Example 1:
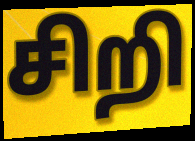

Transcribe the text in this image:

சிறி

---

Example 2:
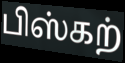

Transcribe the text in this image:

பிஸ்கற்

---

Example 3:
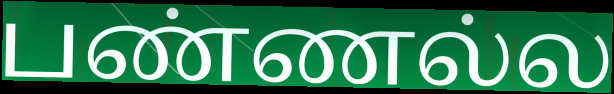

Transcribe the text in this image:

பண்ணல்ல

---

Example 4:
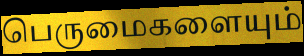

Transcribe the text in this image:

பெருமைகளையும்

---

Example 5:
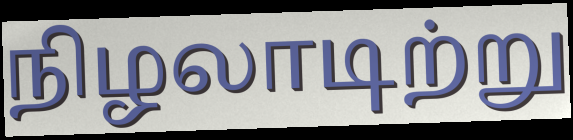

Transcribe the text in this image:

நிழலாடிற்று